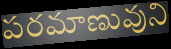
పరమాణువుని